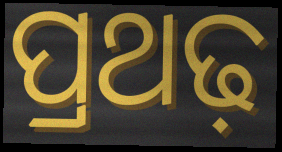
ପ୍ରଥଢ଼